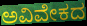
ಅವಿವೇಕದ